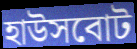
হাউসবোট